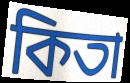
কিতা